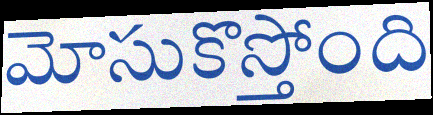
మోసుకొస్తోంది